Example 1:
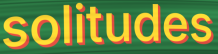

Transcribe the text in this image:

solitudes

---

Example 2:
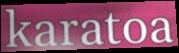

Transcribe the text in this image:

karatoa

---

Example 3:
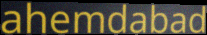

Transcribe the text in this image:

ahemdabad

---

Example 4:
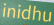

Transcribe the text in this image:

inidhu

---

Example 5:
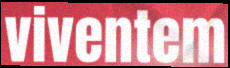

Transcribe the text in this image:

viventem